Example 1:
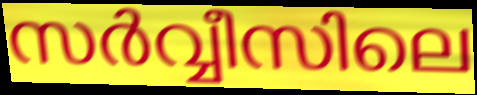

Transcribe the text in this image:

സർവ്വീസിലെ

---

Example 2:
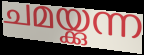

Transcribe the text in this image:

ചമയ്ക്കുന്ന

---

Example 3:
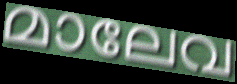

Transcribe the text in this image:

മാലേവ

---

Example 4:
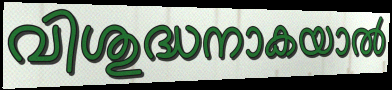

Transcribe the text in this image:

വിശുദ്ധനാകയാൽ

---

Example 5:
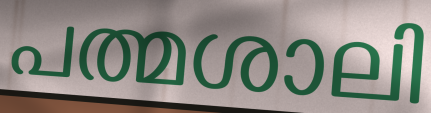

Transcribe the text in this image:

പത്മശാലി